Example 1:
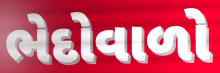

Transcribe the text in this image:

ભેદોવાળો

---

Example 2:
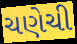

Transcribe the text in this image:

ચણેચી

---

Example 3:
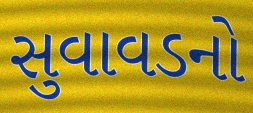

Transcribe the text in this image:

સુવાવડનો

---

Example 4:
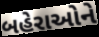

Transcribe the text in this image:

બહેરાઓને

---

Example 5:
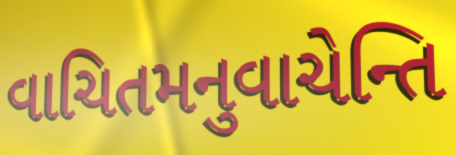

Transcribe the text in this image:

વાચિતમનુવાચેન્તિ